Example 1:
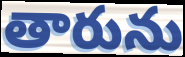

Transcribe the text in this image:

తారును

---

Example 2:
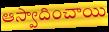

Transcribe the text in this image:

ఆస్వాదించాయి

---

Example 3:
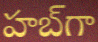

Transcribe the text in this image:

హబ్‌గా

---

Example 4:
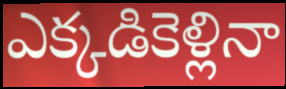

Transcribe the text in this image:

ఎక్కడికెళ్లినా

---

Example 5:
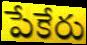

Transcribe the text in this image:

పేకేరు